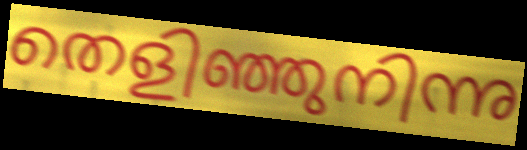
തെളിഞ്ഞുനിന്നു